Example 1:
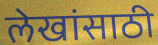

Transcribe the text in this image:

लेखांसाठी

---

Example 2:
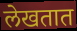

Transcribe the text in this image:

लेखतात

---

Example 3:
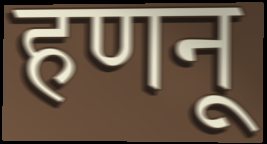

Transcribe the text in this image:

हणनू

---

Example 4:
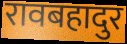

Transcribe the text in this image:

रावबहादुर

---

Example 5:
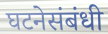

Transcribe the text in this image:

घटनेसंबंधी